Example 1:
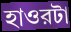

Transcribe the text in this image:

হাওরটা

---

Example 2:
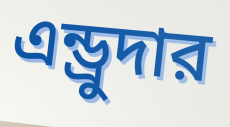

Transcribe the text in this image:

এন্ড্রুদার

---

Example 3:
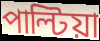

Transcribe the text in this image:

পাল্টিয়া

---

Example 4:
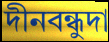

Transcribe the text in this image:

দীনবন্ধুদা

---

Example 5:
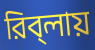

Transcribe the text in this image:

রিব্‌লায়